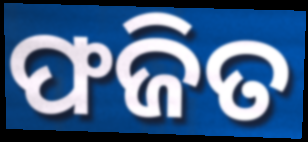
ଫଜିତ